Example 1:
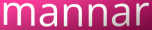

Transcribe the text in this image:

mannar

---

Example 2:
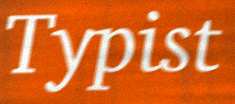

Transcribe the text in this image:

Typist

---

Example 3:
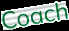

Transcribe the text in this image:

Coach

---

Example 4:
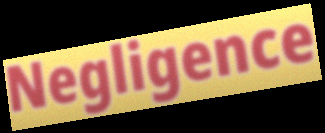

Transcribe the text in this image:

Negligence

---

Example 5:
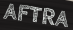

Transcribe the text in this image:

AFTRA